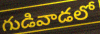
గుడివాడలో